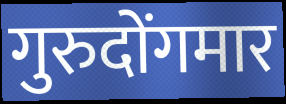
गुरुदोंगमार